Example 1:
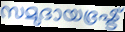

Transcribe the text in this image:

സമുദായഭ്രഷ്ട്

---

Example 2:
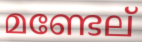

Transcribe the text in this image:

മണ്ടേല്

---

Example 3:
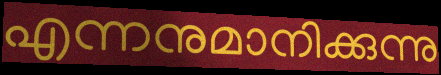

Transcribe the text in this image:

എന്നനുമാനിക്കുന്നു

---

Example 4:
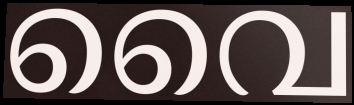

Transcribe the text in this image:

വൈ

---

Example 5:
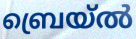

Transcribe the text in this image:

ബ്രെയ്ൽ